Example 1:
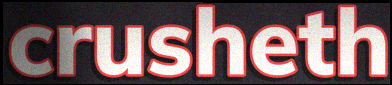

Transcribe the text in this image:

crusheth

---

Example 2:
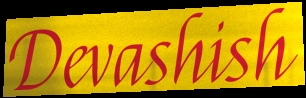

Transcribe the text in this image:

Devashish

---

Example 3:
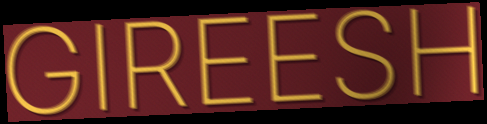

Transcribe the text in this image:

GIREESH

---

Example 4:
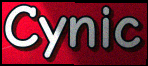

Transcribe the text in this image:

Cynic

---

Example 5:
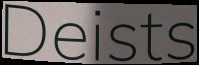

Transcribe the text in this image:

Deists